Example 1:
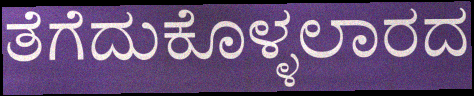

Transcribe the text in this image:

ತೆಗೆದುಕೊಳ್ಳಲಾರದ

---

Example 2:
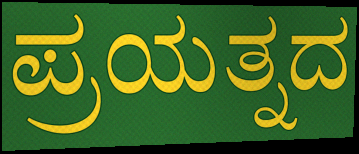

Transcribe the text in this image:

ಪ್ರಯತ್ನದ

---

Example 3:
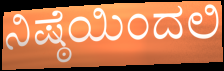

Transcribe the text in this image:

ನಿಷ್ಠೆಯಿಂದಲಿ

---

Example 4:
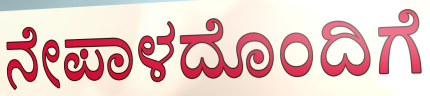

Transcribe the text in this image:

ನೇಪಾಳದೊಂದಿಗೆ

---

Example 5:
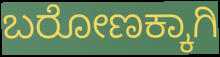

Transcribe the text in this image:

ಬರೋಣಕ್ಕಾಗಿ